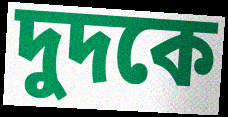
দুদকে